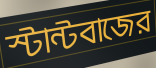
স্টান্টবাজের